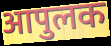
आपुलक